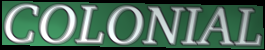
COLONIAL